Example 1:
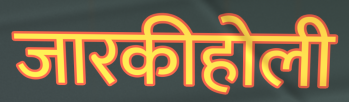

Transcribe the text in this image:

जारकीहोली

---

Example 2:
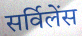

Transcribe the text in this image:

सर्विलेंस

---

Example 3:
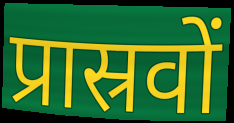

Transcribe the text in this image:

प्रास्रवों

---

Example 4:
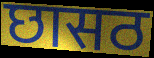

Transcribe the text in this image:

छासठ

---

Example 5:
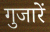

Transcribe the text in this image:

गुजारें